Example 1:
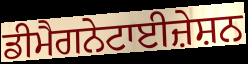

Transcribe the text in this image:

ਡੀਮੈਗਨੇਟਾਈਜ਼ੇਸ਼ਨ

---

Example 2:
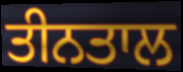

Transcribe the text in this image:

ਤੀਨਤਾਲ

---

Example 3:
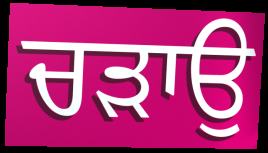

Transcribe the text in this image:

ਚੜਾਉ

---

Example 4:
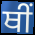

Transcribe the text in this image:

ਥੀਂ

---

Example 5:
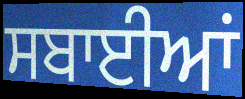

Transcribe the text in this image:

ਸਬਾਈਆਂ